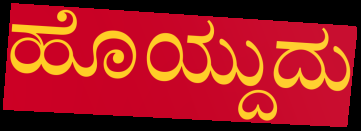
ಹೊಯ್ದುದು